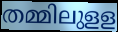
തമ്മിലുളള